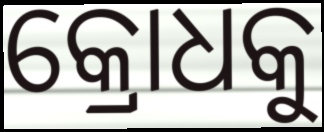
କ୍ରୋଧକୁ